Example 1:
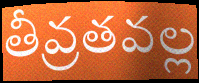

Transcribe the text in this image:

తీవ్రతవల్ల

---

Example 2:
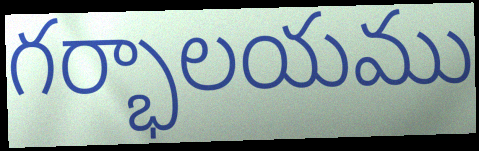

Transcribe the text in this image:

గర్భాలయము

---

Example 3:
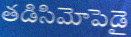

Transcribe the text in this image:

తడిసిమోపెడై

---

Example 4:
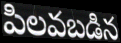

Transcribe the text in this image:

పిలవబడిన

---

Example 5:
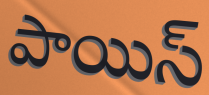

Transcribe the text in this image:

పాయిస్